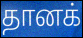
தானக்